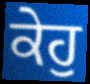
ਕੇਹੁ